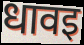
धावइ